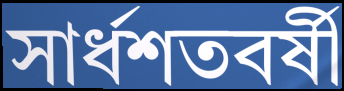
সার্ধশতবর্ষী